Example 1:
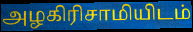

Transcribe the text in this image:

அழகிரிசாமியிடம்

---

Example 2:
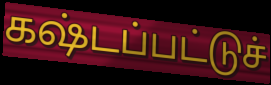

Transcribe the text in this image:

கஷ்டப்பட்டுச்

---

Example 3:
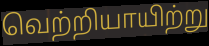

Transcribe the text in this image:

வெற்றியாயிற்று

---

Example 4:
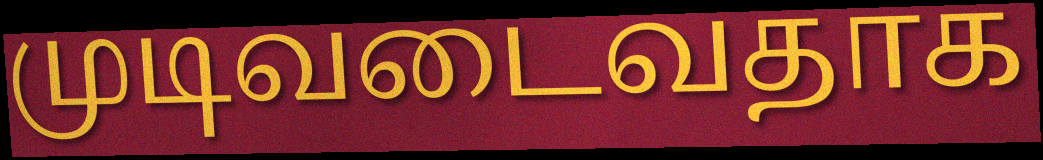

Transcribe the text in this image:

முடிவடைவதாக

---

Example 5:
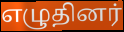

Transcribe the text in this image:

எழுதினர்